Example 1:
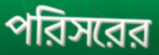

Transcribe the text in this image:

পরিসরের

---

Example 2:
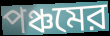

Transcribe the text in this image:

পঞ্চমের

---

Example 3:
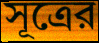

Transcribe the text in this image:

সূত্রের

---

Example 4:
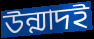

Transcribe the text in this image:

উন্মাদই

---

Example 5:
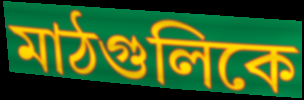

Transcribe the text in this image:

মাঠগুলিকে